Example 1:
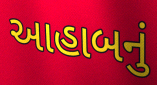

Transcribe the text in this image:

આહાબનું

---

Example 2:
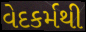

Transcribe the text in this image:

વેદકર્મથી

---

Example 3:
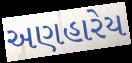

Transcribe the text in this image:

અણહારેય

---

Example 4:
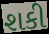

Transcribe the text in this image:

શકી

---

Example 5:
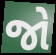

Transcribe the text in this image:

જો